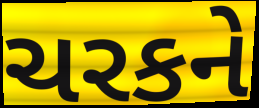
ચરકને